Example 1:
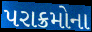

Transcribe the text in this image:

પરાક્રમોના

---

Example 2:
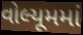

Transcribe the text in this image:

વોલ્યૂમમાં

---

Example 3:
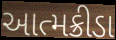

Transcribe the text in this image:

આત્મક્રીડા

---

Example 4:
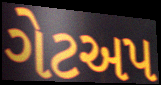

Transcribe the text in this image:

ગેટઅપ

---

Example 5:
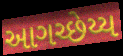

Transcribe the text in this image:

આગચ્છેય્ય